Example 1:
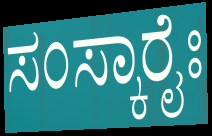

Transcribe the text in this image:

ಸಂಸ್ಕಾರೈಃ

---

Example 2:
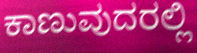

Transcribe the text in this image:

ಕಾಣುವುದರಲ್ಲಿ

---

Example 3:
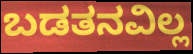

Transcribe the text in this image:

ಬಡತನವಿಲ್ಲ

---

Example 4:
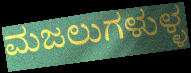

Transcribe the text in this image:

ಮಜಲುಗಳುಳ್ಳ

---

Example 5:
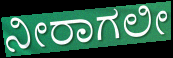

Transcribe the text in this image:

ನೀರಾಗಲೀ